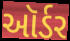
ઑર્ડર